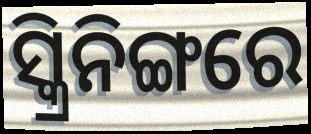
ସ୍କ୍ରିନିଙ୍ଗରେ